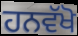
ਹਨਵੱਖੋ